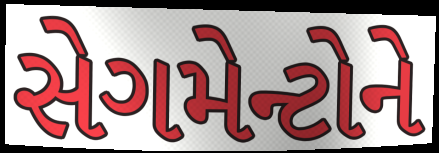
સેગમેન્ટોને